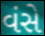
વંસે